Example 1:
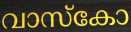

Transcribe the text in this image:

വാസ്കോ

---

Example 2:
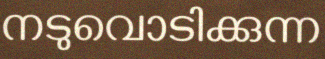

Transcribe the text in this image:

നടുവൊടിക്കുന്ന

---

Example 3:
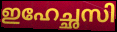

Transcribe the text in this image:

ഇഹേച്ഛസി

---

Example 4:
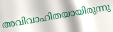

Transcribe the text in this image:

അവിവാഹിതയായിരുന്നു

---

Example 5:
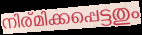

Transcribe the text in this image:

നിര്മിക്കപ്പെട്ടതും